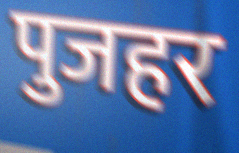
पुजहर